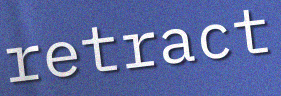
retract